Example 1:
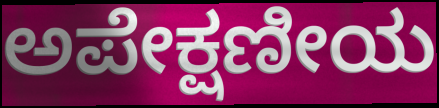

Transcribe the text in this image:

ಅಪೇಕ್ಷಣೀಯ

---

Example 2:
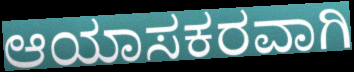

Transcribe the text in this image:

ಆಯಾಸಕರವಾಗಿ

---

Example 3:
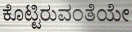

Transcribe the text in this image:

ಕೊಟ್ಟಿರುವಂತೆಯೇ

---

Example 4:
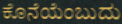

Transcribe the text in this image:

ಕೊನೆಯೆಂಬುದು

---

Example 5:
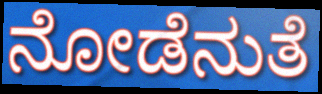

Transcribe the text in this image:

ನೋಡೆನುತೆ